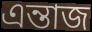
এন্তাজ